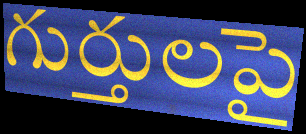
గుర్తులపై